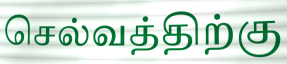
செல்வத்திற்கு